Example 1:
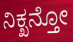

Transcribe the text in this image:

ನಿಕ್ಖನ್ತೋ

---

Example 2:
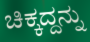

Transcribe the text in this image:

ಚಿಕ್ಕದ್ದನ್ನು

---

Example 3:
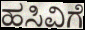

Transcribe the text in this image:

ಹಸಿವಿಗೆ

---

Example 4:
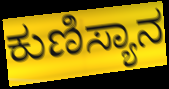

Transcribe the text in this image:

ಕುಣಿಸ್ಯಾನ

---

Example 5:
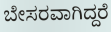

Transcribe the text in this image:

ಬೇಸರವಾಗಿದ್ದರೆ